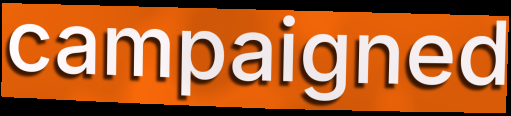
campaigned